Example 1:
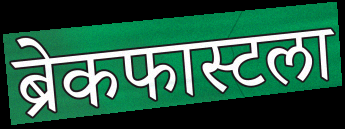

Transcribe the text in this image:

ब्रेकफास्टला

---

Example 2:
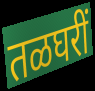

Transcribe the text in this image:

तळघरीं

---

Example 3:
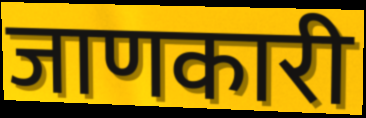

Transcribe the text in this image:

जाणकारी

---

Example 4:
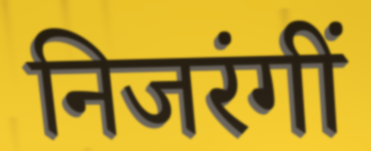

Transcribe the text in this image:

निजरंगीं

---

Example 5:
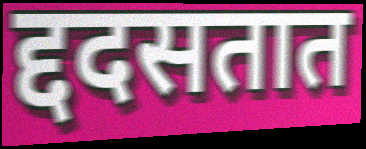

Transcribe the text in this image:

द्ददसतात